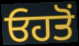
ਓਹਤੋਂ